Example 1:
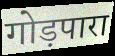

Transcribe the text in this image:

गोड़पारा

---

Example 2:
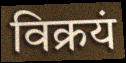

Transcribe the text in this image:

विक्रयं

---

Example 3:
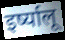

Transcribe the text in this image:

इर्ष्यालू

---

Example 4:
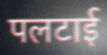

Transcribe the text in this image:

पलटाई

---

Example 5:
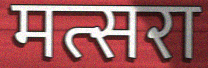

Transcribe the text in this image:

मत्सरा